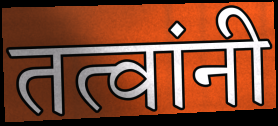
तत्वांनी